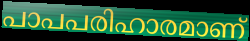
പാപപരിഹാരമാണ്